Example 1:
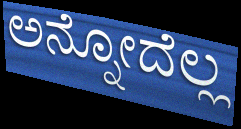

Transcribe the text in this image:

ಅನ್ನೋದೆಲ್ಲ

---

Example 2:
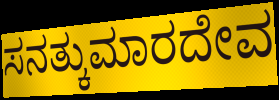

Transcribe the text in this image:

ಸನತ್ಕುಮಾರದೇವ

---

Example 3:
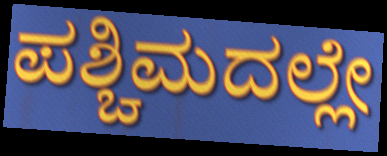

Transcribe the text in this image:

ಪಶ್ಚಿಮದಲ್ಲೇ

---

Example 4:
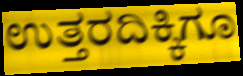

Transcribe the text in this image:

ಉತ್ತರದಿಕ್ಕಿಗೂ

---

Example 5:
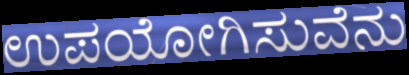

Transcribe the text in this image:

ಉಪಯೋಗಿಸುವೆನು